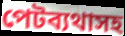
পেটব্যথাসহ